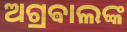
ଅଗ୍ରଵାଲଙ୍କ